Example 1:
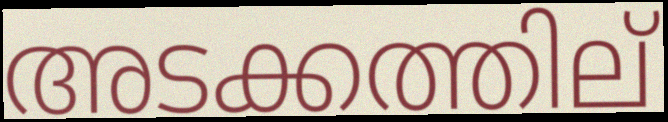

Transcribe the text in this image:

അടക്കത്തില്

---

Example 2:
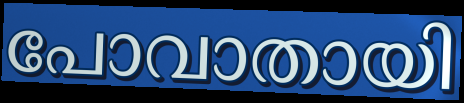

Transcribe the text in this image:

പോവാതായി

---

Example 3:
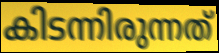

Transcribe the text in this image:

കിടന്നിരുന്നത്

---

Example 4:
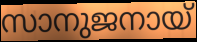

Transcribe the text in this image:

സാനുജനായ്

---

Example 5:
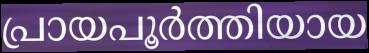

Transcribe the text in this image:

പ്രായപൂർത്തിയായ